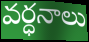
వర్ధనాలు